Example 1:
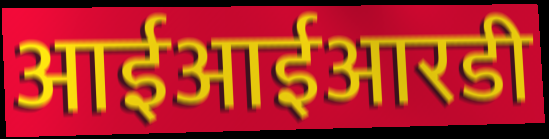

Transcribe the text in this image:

आईआईआरडी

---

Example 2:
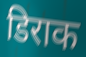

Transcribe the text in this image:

डिराक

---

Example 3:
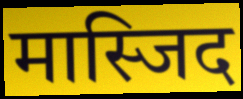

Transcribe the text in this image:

मास्जिद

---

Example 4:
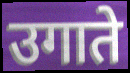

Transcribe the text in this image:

उगाते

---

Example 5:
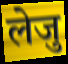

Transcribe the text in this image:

लेजु